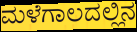
ಮಳೆಗಾಲದಲ್ಲಿನ